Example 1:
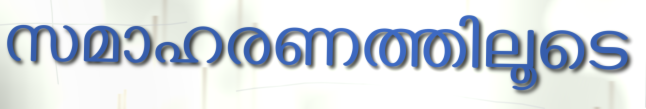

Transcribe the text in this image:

സമാഹരണത്തിലൂടെ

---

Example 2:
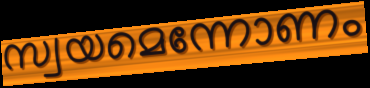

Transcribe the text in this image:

സ്വയമെന്നോണം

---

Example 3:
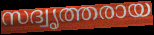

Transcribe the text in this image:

സദ്വൃത്തരായ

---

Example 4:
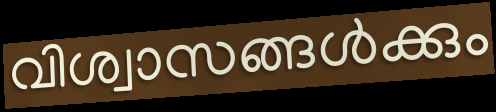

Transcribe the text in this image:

വിശ്വാസങ്ങൾക്കും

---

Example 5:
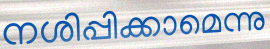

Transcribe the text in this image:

നശിപ്പിക്കാമെന്നു